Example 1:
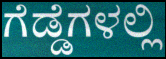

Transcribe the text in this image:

ಗೆಡ್ಡೆಗಳಲ್ಲಿ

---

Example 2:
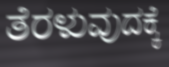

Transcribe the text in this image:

ತೆರಳುವುದಕ್ಕೆ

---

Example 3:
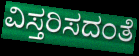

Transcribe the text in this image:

ವಿಸ್ತರಿಸದಂತೆ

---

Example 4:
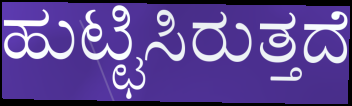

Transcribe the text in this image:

ಹುಟ್ಟಿಸಿರುತ್ತದೆ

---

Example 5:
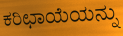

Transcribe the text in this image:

ಕರಿಛಾಯೆಯನ್ನು